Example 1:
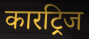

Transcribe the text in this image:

कारट्रिज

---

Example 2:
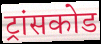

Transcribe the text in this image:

ट्रांसकोड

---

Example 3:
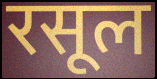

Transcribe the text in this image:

रसूल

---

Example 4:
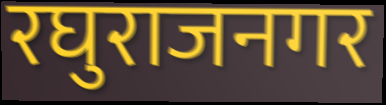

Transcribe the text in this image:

रघुराजनगर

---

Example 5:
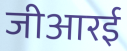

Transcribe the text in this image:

जीआरई